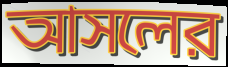
আসলের